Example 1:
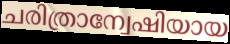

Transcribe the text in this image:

ചരിത്രാന്വേഷിയായ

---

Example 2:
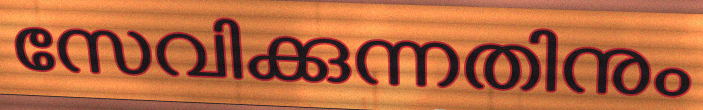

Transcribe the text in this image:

സേവിക്കുന്നതിനും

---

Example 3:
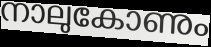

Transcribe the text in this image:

നാലുകോണും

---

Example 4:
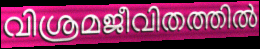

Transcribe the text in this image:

വിശ്രമജീവിതത്തിൽ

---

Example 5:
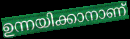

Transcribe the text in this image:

ഉന്നയിക്കാനാണ്